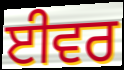
ਈਵਰ